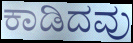
ಕಾಡಿದವು